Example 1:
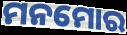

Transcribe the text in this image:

ମନମୋର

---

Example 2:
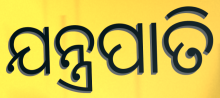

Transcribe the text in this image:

ଯନ୍ତ୍ରପାତି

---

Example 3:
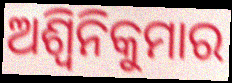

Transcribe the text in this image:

ଅଶ୍ୱିନିକୁମାର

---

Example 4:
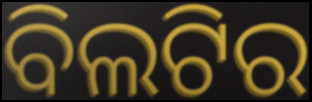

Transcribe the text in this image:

ବିଲଟିର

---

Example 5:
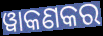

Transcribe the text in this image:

ୱାକଣକର